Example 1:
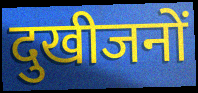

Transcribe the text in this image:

दुखीजनों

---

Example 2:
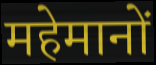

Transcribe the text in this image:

महेमानों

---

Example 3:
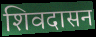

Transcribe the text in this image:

शिवदासन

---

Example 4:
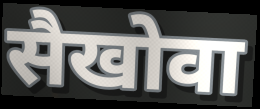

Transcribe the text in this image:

सैखोवा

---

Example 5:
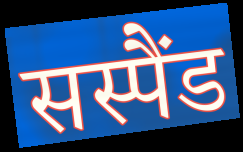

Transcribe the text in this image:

सस्पैंड